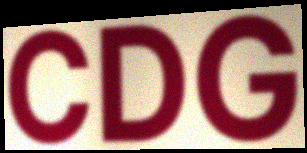
CDG